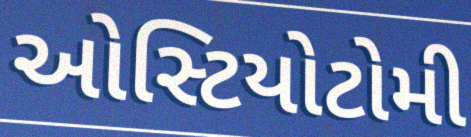
ઓસ્ટિયોટોમી